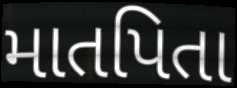
માતપિતા